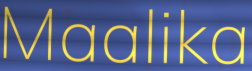
Maalika